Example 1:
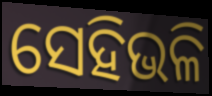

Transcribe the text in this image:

ସେହିଭଳି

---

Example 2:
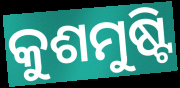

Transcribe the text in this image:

କୁଶମୁଷ୍ଟି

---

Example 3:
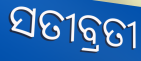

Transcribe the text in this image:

ସତୀବ୍ରତୀ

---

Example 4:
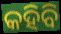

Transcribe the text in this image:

କହିବି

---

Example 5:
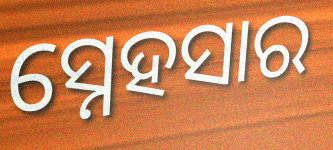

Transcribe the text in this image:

ସ୍ନେହସାର